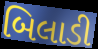
બિલાડી